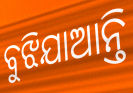
ବୁଝିଯାଆନ୍ତି